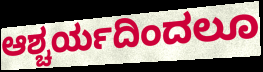
ಆಶ್ಚರ್ಯದಿಂದಲೂ